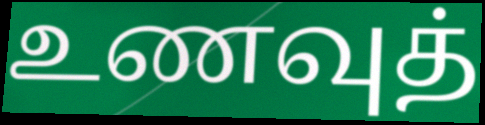
உணவுத்